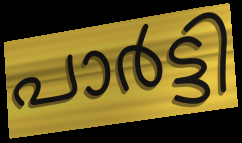
പാർട്ടി